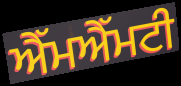
ਐੱਮਐੱਮਟੀ